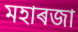
মহাৰজা